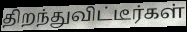
திறந்துவிட்டீர்கள்